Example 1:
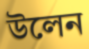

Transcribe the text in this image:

উলেন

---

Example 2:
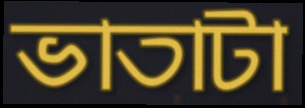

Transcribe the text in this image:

ভাতাটা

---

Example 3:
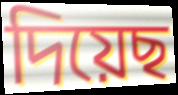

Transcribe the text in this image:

দিয়েছ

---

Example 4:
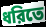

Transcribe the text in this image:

ধরিতে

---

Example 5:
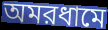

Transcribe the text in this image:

অমরধামে